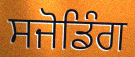
ਸਜੋਡਿੰਗ